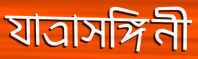
যাত্রাসঙ্গিনী